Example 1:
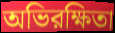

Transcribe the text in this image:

অভিরক্ষিতা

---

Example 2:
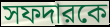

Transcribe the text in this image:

সফদারকে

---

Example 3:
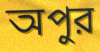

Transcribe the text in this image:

অপুর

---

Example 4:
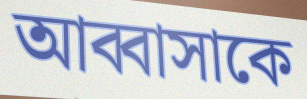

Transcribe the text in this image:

আব্বাসাকে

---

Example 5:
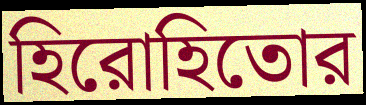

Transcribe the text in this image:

হিরোহিতোর